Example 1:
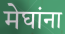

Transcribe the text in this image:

मेघांना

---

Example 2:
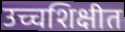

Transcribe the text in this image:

उच्चशिक्षीत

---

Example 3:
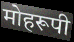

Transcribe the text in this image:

मोहरूपी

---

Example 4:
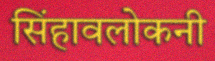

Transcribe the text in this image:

सिंहावलोकनी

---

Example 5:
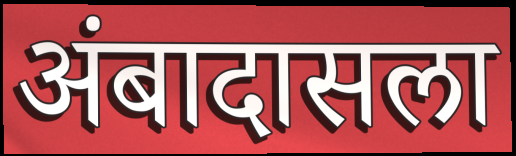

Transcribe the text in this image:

अंबादासला